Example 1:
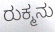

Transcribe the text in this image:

ರುಕ್ಮನು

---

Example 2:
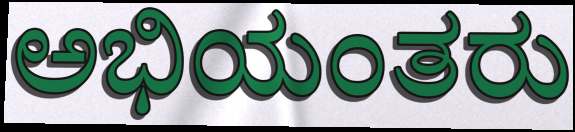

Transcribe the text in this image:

ಅಭಿಯಂತರು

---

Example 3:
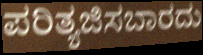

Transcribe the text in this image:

ಪರಿತ್ಯಜಿಸಬಾರದು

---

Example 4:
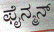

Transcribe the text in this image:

ಫೈನ್ಮನ್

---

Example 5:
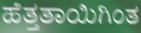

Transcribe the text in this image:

ಹೆತ್ತತಾಯಿಗಿಂತ